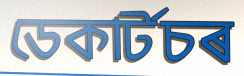
ডেকাৰ্টচৰ